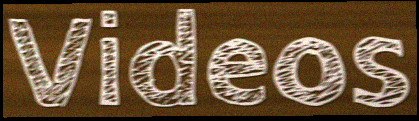
Videos